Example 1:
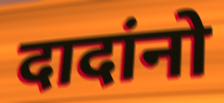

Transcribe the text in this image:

दादांनो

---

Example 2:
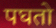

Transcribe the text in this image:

पघतो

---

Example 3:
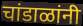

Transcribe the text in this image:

चांडाळांनी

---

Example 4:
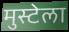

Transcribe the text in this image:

मुस्टेला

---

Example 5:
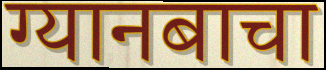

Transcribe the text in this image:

ग्यानबाचा